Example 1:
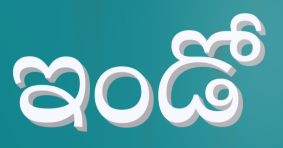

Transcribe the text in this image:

ఇండో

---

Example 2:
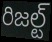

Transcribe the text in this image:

రిజల్ట్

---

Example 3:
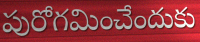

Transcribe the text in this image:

పురోగమించేందుకు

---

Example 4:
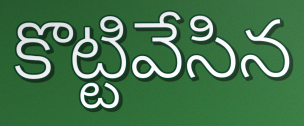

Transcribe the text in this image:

కొట్టివేసిన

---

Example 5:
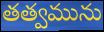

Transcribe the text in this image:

తత్వమును